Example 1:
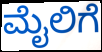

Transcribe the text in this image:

ಮೈಲಿಗೆ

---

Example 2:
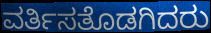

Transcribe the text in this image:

ವರ್ತಿಸತೊಡಗಿದರು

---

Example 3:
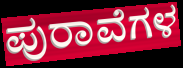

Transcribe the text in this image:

ಪುರಾವೆಗಳ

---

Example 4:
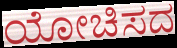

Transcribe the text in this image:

ಯೋಚಿಸದ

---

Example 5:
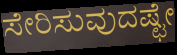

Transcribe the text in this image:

ಸೇರಿಸುವುದಷ್ಟೇ